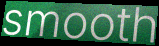
smooth